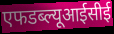
एफडब्ल्यूआईसीई